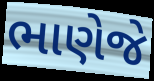
ભાણેજે